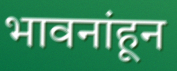
भावनांहून